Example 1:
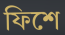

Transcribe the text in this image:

ফিশে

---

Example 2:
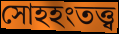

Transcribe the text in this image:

সোহহংতত্ত্ব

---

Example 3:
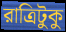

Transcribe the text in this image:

রাত্রিটুকু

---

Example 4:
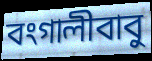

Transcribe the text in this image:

বংগালীবাবু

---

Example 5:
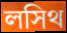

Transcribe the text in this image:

লসিথ